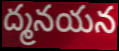
ద్మనయన